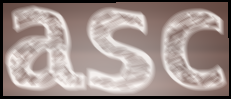
asc